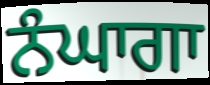
ਨੰਘਾਗਾ